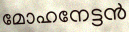
മോഹനേട്ടൻ